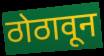
ठोठावून